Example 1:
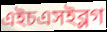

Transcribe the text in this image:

এইচএসইব্লগ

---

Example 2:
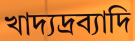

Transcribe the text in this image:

খাদ্যদ্রব্যাদি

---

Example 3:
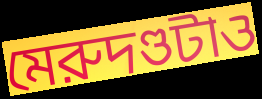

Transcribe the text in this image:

মেরুদণ্ডটাও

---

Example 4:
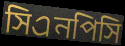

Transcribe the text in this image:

সিএনপিসি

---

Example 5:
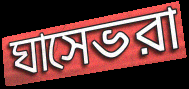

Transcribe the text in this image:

ঘাসেভরা